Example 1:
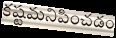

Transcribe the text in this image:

కష్టమనిపించడం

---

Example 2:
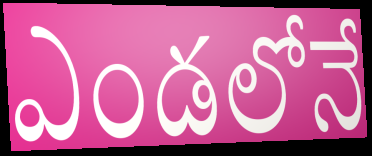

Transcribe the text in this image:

ఎండలోనే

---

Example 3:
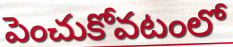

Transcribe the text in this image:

పెంచుకోవటంలో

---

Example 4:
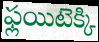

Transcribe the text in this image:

ఫ్లయిటెక్కి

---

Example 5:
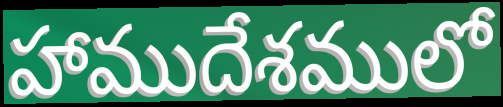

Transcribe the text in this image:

హాముదేశములో